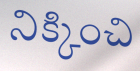
నిక్కించి